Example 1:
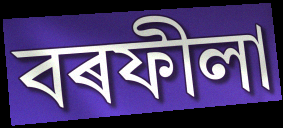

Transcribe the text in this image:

বৰফীলা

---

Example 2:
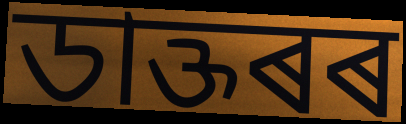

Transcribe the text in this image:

ডাক্তৰৰ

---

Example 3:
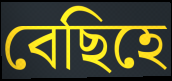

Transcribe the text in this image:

বেছিহে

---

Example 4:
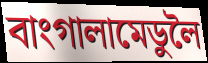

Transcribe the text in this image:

বাংগালামেডুলৈ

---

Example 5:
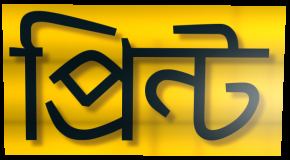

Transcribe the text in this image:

প্ৰিন্ট